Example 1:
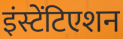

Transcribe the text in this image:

इंस्टेंटिएशन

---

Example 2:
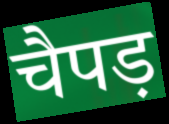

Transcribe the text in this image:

चैपड़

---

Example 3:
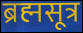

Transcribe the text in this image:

ब्रह्मसूत्र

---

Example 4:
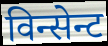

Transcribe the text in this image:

विन्सेन्ट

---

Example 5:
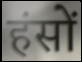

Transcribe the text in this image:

हंसों